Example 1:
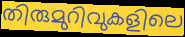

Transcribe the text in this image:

തിരുമുറിവുകളിലെ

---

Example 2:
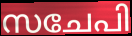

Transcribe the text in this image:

സചേപി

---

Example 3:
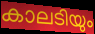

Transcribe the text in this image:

കാലടിയും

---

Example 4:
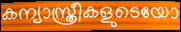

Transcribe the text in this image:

കന്യാസ്ത്രീകളുടെയോ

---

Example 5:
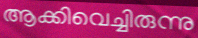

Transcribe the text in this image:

ആക്കിവെച്ചിരുന്നു